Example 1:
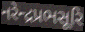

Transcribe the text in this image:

નરેન્દ્રપ્રભસૂરિ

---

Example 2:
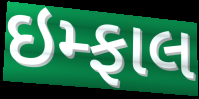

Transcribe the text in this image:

ઇમ્ફાલ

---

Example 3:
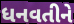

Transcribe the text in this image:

ધનવતીને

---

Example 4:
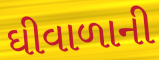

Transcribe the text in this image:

ઘીવાળાની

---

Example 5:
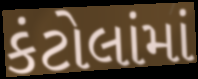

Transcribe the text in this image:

કંટોલાંમાં